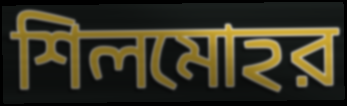
শিলমোহর